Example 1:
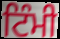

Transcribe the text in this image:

ਟਿੰਮੀ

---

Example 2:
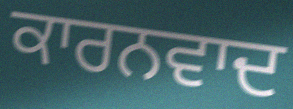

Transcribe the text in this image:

ਕਾਰਨਵਾਦ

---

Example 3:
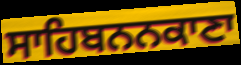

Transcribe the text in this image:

ਸਾਹਿਬਨਨਕਾਣਾ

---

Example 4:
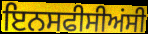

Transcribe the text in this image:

ਇਨਸਫੀਸੀਅਂਸੀ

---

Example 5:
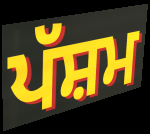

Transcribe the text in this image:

ਪੱਸ਼ਮ